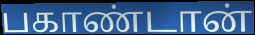
பகாண்டான்